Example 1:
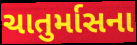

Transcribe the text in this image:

ચાતુર્માસના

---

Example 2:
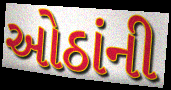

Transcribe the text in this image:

ઓઠાંની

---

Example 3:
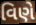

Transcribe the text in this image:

વિણે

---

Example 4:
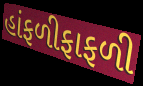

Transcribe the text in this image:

હાંફળીફાફળી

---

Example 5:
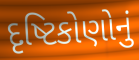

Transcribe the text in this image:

દૃષ્ટિકોણોનું